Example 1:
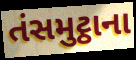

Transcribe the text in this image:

તંસમુટ્ઠાના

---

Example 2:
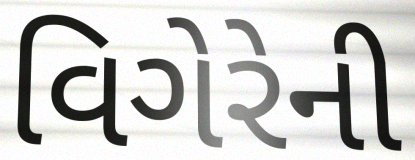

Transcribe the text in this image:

વિગેરેની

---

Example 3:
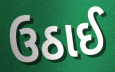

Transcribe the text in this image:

ઉઠાઈ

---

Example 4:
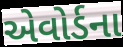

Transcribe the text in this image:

એવોર્ડના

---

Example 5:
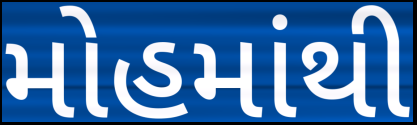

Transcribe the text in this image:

મોહમાંથી